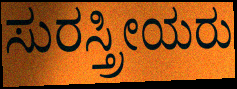
ಸುರಸ್ತ್ರೀಯರು